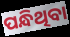
ପନ୍ଧିଥିବା